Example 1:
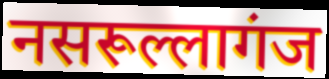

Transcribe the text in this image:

नसरूल्लागंज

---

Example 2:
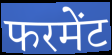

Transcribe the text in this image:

फरमेंट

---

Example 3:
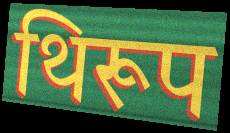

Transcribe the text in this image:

थिरूप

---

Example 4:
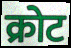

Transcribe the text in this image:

क्रोट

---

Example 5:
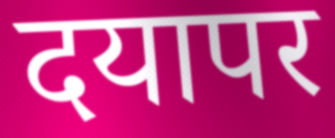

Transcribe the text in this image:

दयापर